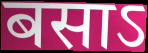
बसाऽ